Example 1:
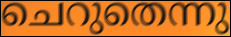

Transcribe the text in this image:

ചെറുതെന്നു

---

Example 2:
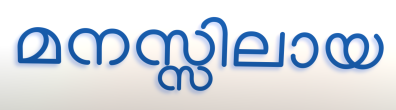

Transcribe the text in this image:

മനസ്സിലായ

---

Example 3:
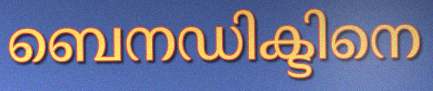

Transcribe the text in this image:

ബെനഡിക്ടിനെ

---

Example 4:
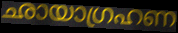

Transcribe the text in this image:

ഛായാഗ്രഹണ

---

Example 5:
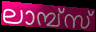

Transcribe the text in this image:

ലാമ്പ്സ്